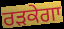
ਰੜਕੇਗਾ